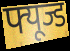
फ्यूज्ड